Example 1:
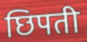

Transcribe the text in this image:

छिपती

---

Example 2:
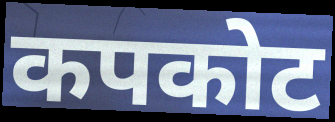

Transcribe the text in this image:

कपकोट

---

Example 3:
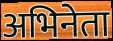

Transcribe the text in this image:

अभिनेता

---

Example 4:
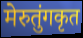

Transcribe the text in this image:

मेरुतुंगकृत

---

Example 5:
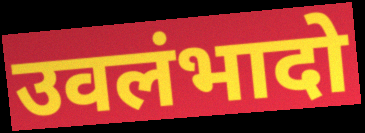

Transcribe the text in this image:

उवलंभादो